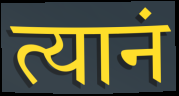
त्यानं